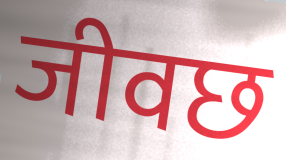
जीवछ